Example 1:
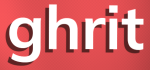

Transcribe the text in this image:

ghrit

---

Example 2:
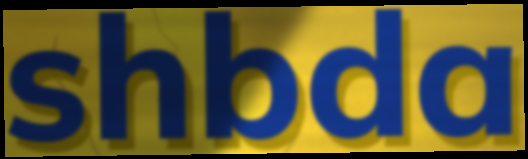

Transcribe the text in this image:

shbda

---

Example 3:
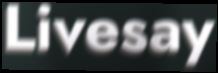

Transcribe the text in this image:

Livesay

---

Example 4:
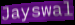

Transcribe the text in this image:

Jayswal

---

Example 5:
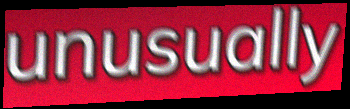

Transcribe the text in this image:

unusually